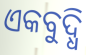
ଏକବୁଦ୍ଧି